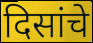
दिसांचे